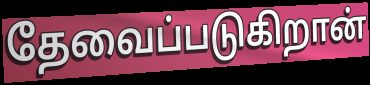
தேவைப்படுகிறான்